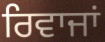
ਰਿਵਾਜਾਂ